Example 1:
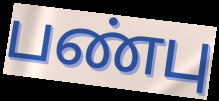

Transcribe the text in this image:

பண்பு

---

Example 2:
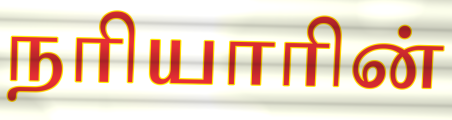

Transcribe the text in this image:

நரியாரின்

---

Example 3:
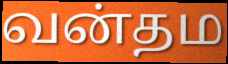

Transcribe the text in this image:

வன்தம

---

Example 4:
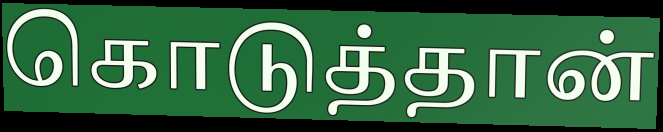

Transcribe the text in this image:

கொடுத்தான்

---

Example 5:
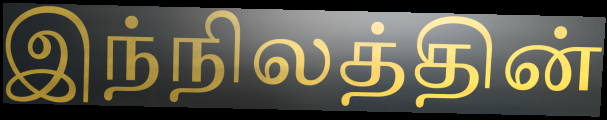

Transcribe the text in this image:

இந்நிலத்தின்